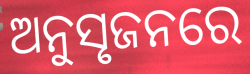
ଅନୁସୃଜନରେ